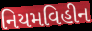
નિયમવિહીન